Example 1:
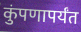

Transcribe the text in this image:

कुंपणापर्यंत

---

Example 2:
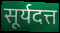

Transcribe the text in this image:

सूर्यदत्त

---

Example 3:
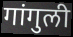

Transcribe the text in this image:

गांगुली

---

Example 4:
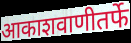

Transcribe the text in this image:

आकाशवाणीतर्फे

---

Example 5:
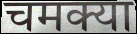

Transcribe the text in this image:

चमक्या